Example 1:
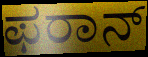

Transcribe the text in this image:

ಫರಾನ್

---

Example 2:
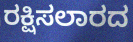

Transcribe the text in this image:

ರಕ್ಷಿಸಲಾರದ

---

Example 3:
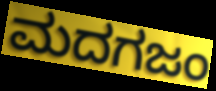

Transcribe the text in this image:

ಮದಗಜಂ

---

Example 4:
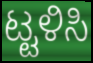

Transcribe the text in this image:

ಟ್ಟಳಿಸಿ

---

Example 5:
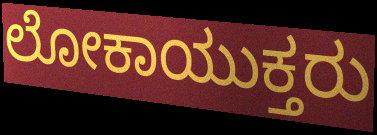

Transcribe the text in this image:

ಲೋಕಾಯುಕ್ತರು